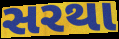
સરથા